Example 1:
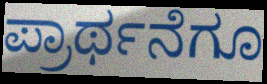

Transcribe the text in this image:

ಪ್ರಾರ್ಥನೆಗೂ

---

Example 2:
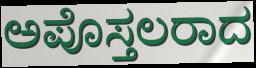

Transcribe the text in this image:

ಅಪೊಸ್ತಲರಾದ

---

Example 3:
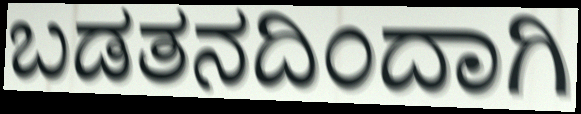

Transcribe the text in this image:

ಬಡತನದಿಂದಾಗಿ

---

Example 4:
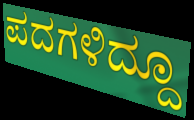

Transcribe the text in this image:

ಪದಗಳಿದ್ದೂ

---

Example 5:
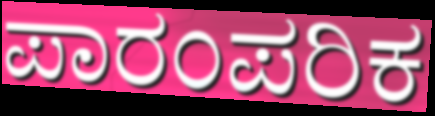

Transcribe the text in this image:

ಪಾರಂಪರಿಕ